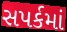
સપર્કમાં